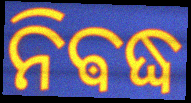
ନିଵଦ୍ଧ